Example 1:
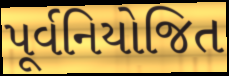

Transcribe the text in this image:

પૂર્વનિયોજિત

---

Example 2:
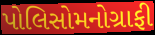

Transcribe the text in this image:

પોલિસોમનોગ્રાફી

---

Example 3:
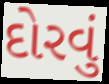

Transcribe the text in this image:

દોરવું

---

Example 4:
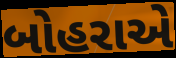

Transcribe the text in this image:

બોહરાએ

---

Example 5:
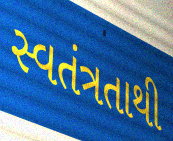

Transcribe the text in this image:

સ્વતંત્રતાથી